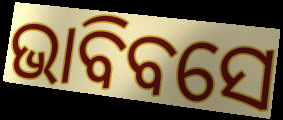
ଭାବିବସେ